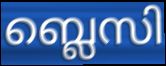
ബ്ലെസി